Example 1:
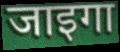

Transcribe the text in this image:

जाइगा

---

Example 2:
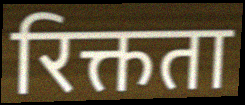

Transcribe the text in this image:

रिक्तता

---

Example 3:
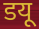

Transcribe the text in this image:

डयू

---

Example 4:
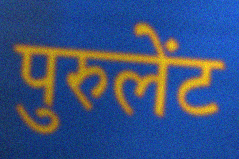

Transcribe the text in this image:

पुरुलेंट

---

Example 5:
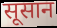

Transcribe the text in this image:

सूसान